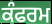
ਕੰਫਰਮ